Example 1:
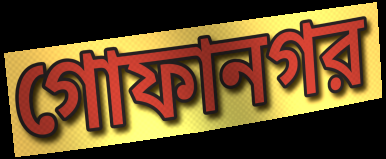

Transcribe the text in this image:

গোফানগর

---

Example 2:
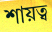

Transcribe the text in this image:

শায়ত্ব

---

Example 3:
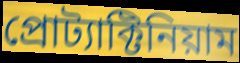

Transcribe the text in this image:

প্রোট্যাক্টিনিয়াম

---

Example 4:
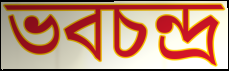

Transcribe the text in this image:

ভবচন্দ্র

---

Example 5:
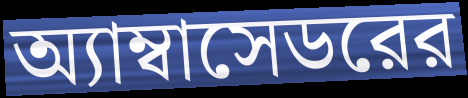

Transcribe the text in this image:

অ্যাম্বাসেডরের